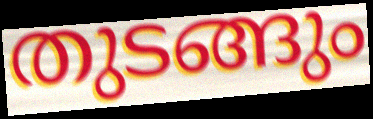
തുടങ്ങും